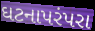
ઘટનાપરંપરા